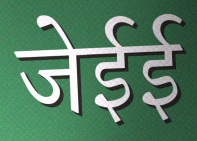
जेईई